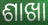
ଶାଖା